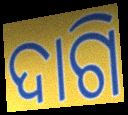
ଦାଗି